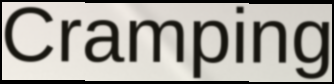
Cramping